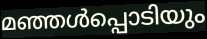
മഞ്ഞൾപ്പൊടിയും